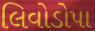
લિવોડોપા